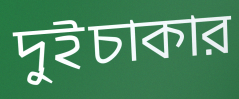
দুইচাকার